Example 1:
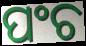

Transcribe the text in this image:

ପଂଚ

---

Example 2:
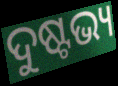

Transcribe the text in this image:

ଦୁଷ୍ଟଭ୍ୟ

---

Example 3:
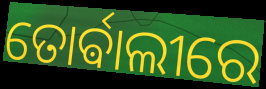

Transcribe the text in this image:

ତୋର୍ଵାଲୀରେ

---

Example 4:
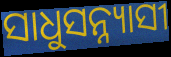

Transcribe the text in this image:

ସାଧୁସନ୍ନ୍ୟାସୀ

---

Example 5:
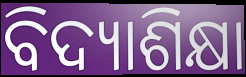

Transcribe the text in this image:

ବିଦ୍ୟାଶିକ୍ଷା